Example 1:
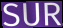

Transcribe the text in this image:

SUR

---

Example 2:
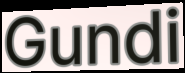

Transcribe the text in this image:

Gundi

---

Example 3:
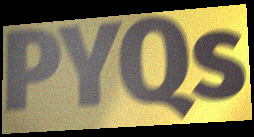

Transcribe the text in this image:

PYQs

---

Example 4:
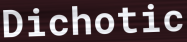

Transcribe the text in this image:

Dichotic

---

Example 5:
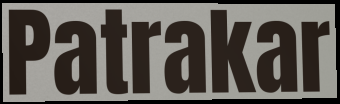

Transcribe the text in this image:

Patrakar